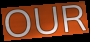
OUR